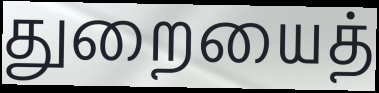
துறையைத்